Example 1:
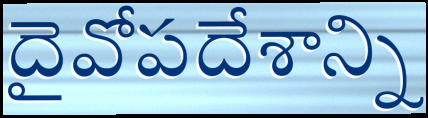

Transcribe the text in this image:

దైవోపదేశాన్ని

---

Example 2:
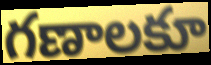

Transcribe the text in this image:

గణాలకూ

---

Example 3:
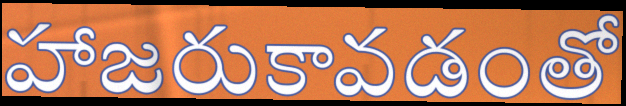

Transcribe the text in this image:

హాజరుకావడంతో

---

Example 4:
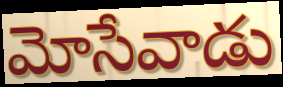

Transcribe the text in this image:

మోసేవాడు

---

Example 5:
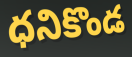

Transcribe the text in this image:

ధనికొండ